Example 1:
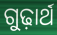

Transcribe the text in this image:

ଗୁଢ଼ାର୍ଥ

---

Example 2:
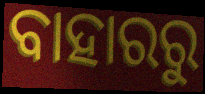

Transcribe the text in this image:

ବାହାରରୁ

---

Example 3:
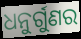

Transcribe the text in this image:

ଧନୁର୍ଗୁଣର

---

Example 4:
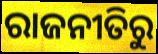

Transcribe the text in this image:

ରାଜନୀତିରୁ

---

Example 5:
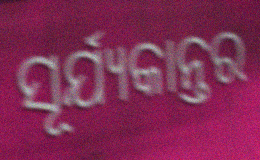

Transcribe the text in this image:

ସୂର୍ଯ୍ୟକାନ୍ତର